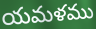
యమళము